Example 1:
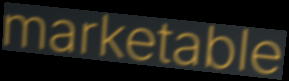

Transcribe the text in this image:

marketable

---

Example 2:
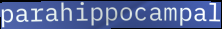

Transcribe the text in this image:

parahippocampal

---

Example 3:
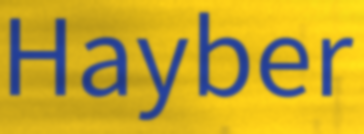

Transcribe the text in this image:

Hayber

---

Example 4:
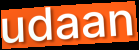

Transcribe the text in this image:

udaan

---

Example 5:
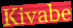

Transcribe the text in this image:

Kivabe